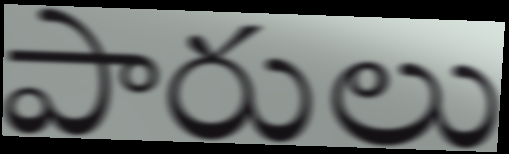
పారులు